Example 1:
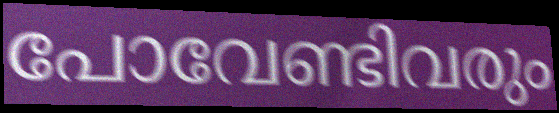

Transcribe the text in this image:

പോവേണ്ടിവരും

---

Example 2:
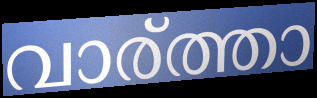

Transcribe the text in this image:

വാര്ത്താ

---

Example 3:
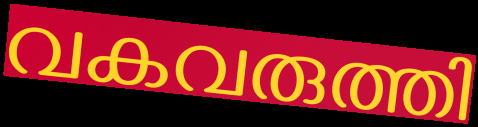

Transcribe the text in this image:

വകവരുത്തി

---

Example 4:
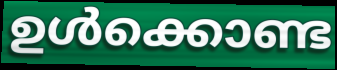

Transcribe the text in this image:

ഉൾക്കൊണ്ട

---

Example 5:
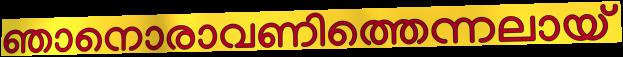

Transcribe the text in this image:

ഞാനൊരാവണിത്തെന്നലായ്